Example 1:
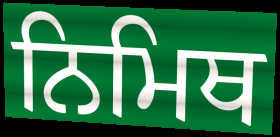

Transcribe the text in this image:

ਨਿਮਿਥ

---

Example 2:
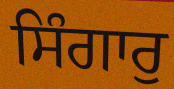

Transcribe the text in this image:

ਸਿੰਗਾਰੁ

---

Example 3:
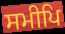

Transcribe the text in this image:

ਸਮੀਪਿ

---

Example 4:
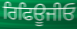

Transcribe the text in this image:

ਰਿਫਿਊਜੀਓ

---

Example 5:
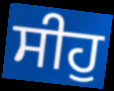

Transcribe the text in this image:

ਸੀਹੁ